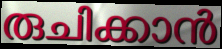
രുചിക്കാൻ